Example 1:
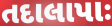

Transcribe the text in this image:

તદાલાપાઃ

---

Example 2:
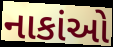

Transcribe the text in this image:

નાકાંઓ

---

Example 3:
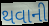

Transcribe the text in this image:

થવાની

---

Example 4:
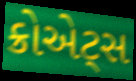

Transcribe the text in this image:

ક્રોએટ્સ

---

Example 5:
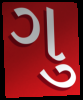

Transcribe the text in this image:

ગુ